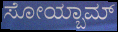
ಸೋಯ್ಬಾಮ್